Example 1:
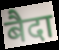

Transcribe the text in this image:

बैदा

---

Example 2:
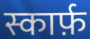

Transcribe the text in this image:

स्कार्फ़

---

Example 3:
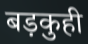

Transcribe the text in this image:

बड़कुही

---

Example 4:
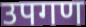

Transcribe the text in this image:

उपगण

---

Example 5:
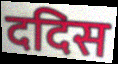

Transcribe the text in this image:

ददिस